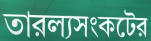
তারল্যসংকটের